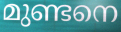
മുണ്ടനെ